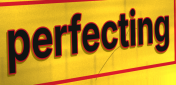
perfecting